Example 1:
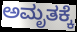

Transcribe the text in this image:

ಅಮೃತಕ್ಕೆ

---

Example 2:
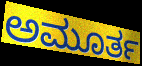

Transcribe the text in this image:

ಅಮೂರ್ತ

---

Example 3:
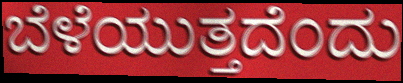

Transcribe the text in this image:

ಬೆಳೆಯುತ್ತದೆಂದು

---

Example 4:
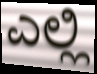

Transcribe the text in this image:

ಎಲ್ಲಿ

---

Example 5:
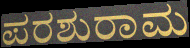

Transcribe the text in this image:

ಪರಶುರಾಮ